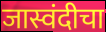
जास्वंदीचा